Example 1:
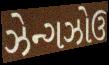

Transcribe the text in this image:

ઝેન્ગઝોઉ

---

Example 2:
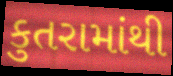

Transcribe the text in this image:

કુતરામાંથી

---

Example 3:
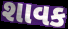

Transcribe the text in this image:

શાવક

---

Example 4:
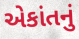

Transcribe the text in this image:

એકાંતનું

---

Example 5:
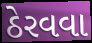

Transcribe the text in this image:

ઠેરવવા